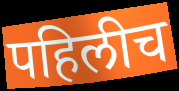
पहिलीच